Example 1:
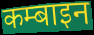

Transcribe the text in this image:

कम्बाइन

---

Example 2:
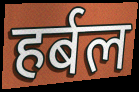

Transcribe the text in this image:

हर्बल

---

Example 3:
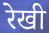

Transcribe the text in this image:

रेखी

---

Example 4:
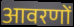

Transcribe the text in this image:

आवरणों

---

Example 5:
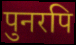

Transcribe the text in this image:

पुनरपि